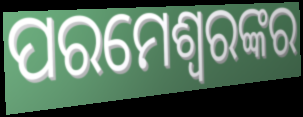
ପରମେଶ୍ଵରଙ୍କର